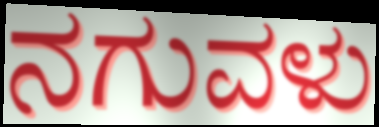
ನಗುವಳು